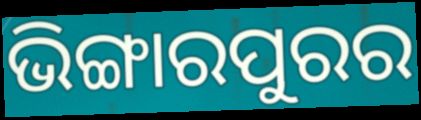
ଭିଙ୍ଗାରପୁରର